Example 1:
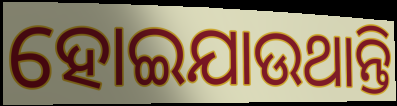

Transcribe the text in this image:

ହୋଇଯାଉଥାନ୍ତି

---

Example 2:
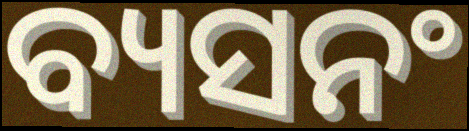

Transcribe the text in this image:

ବ୍ୟସନଂ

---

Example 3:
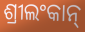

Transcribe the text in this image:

ଶ୍ରୀଲଂକାନ୍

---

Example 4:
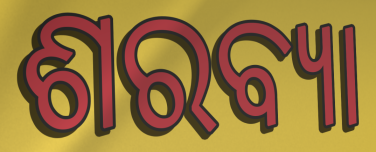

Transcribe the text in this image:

ଶରବ୍ୟା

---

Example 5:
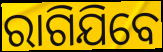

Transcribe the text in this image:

ରାଗିଯିବେ